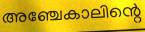
അഞ്ചേകാലിന്റെ